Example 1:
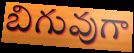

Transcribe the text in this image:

బిగువుగా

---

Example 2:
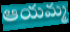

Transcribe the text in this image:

ఆయమ్మ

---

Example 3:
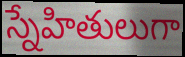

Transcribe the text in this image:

స్నేహితులుగా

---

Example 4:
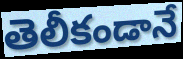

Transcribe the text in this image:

తెలీకండానే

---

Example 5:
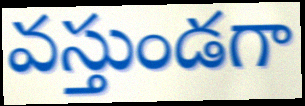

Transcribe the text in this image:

వస్తుండగా